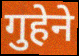
गुहेने